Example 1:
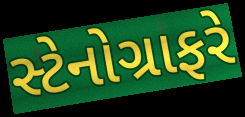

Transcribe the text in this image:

સ્ટેનોગ્રાફરે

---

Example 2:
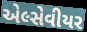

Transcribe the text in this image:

એલ્સેવીયર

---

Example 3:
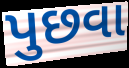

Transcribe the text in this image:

પુછવા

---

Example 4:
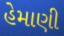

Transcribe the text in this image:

હેમાણી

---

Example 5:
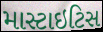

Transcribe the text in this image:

માસ્ટાઇટિસ